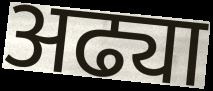
अढ्या